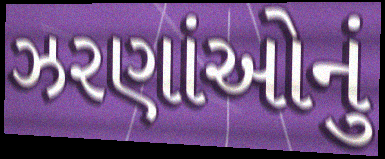
ઝરણાંઓનું